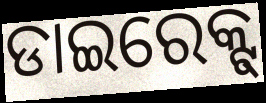
ଡାଇରେକ୍ଟ୍